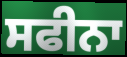
ਸਫੀਨਾ